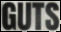
GUTS